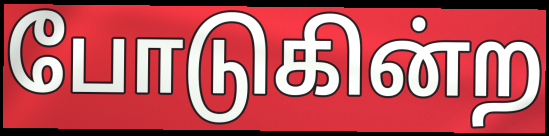
போடுகின்ற